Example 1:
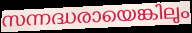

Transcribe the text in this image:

സന്നദ്ധരായെങ്കിലും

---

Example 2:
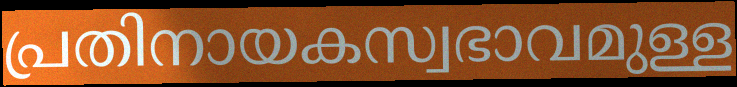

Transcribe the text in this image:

പ്രതിനായകസ്വഭാവമുള്ള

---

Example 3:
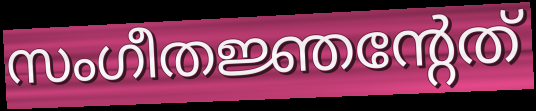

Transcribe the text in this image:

സംഗീതജ്ഞന്റേത്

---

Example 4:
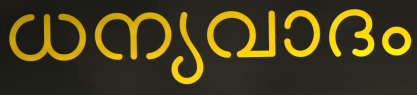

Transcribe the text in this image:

ധന്യവാദം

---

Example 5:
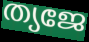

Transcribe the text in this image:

ത്യജേ